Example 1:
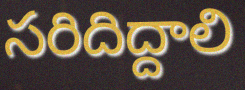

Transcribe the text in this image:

సరిదిద్దాలి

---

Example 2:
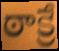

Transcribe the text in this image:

ఠాక్రే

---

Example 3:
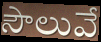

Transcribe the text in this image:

సౌలువే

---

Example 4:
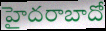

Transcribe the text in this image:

హైదరాబాదో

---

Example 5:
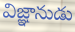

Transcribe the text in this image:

విజ్ఞానుడు